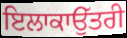
ਇਲਾਕਾਉੱਤਰੀ